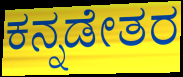
ಕನ್ನಡೇತರ